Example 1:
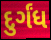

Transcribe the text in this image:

દુર્ગંધ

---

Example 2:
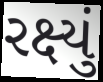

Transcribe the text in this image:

રક્ષ્યું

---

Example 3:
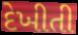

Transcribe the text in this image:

દેખીતી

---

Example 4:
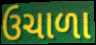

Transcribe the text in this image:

ઉચાળા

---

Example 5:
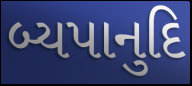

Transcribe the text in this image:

બ્યપાનુદિ